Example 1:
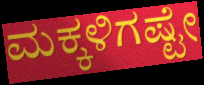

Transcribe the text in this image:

ಮಕ್ಕಳಿಗಷ್ಟೇ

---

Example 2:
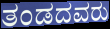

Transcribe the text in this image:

ತಂಡದವರು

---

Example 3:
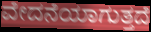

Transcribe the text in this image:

ವೇದನೆಯಾಗುತ್ತದೆ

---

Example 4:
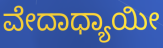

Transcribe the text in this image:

ವೇದಾಧ್ಯಾಯೀ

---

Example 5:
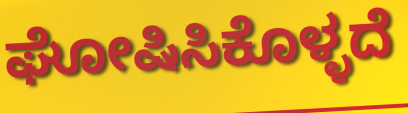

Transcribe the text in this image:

ಘೋಷಿಸಿಕೊಳ್ಳದೆ